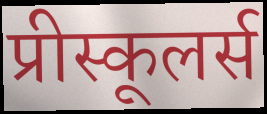
प्रीस्कूलर्स